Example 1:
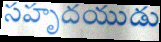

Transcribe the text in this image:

సహృదయుడు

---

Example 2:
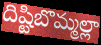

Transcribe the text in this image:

దిష్టిబొమ్మల్లా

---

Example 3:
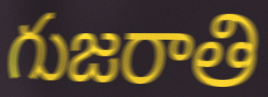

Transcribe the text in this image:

గుజరాతి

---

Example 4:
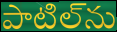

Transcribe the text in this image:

పాటిల్‌ను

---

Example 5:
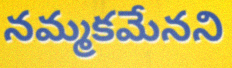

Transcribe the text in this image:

నమ్మకమేనని